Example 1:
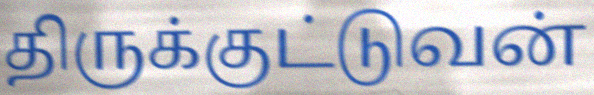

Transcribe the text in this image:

திருக்குட்டுவன்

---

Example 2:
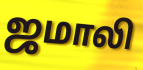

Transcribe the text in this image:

ஜமாலி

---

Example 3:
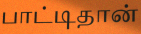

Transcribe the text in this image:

பாட்டிதான்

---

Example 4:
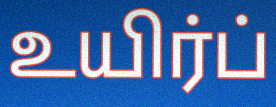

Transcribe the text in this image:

உயிர்ப்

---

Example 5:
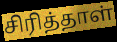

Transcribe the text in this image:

சிரித்தாள்